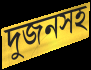
দুজনসহ